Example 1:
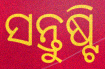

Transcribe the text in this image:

ସନ୍ତୁଷ୍ଟି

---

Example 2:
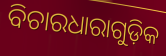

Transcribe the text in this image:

ବିଚାରଧାରାଗୁଡ଼ିକ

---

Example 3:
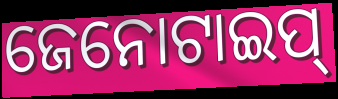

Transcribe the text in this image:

ଜେନୋଟାଇପ୍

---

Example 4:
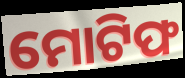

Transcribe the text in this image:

ମୋଟିଫ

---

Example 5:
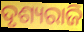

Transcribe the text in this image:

ଦୃଶ୍ୟରାଜି